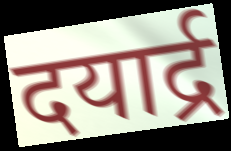
दयार्द्र